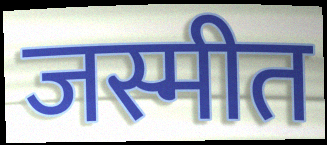
जस्मीत